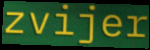
zvijer